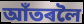
আঁতৰলৈ